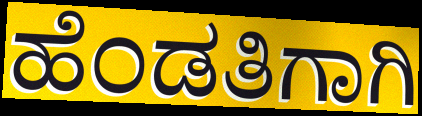
ಹೆಂಡತಿಗಾಗಿ